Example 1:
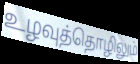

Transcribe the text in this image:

உழவுத்தொழிலும்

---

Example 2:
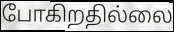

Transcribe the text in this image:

போகிறதில்லை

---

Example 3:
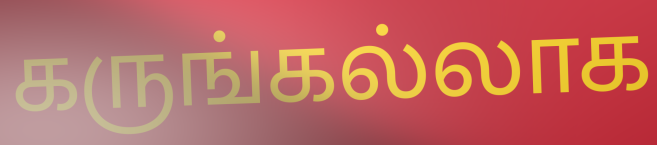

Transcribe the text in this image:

கருங்கல்லாக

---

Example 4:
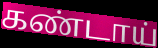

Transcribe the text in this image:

கண்டாய்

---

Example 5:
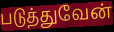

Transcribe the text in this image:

படுத்துவேன்